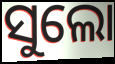
ସୁଲୋ